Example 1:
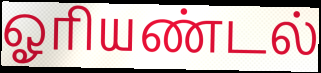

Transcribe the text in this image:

ஓரியண்டல்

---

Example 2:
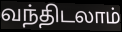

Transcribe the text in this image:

வந்திடலாம்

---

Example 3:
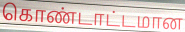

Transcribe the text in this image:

கொண்டாட்டமான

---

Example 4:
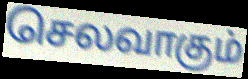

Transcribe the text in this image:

செலவாகும்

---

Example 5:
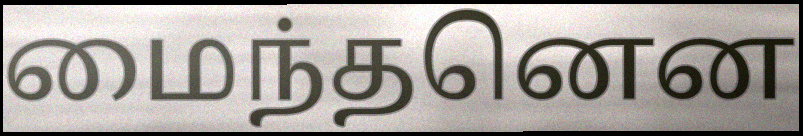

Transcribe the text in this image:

மைந்தனென